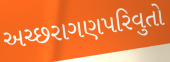
અચ્છરાગણપરિવુતો